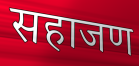
सहाजण